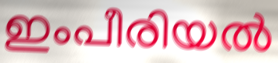
ഇംപീരിയൽ